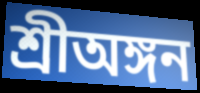
শ্রীঅঙ্গন